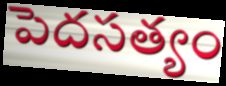
పెదసత్యం